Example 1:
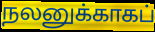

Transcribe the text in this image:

நலனுக்காகப்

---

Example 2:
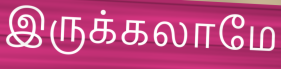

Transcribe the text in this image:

இருக்கலாமே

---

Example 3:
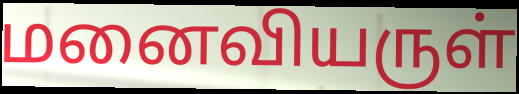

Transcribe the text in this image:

மனைவியருள்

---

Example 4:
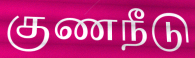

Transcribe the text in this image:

குணநீடு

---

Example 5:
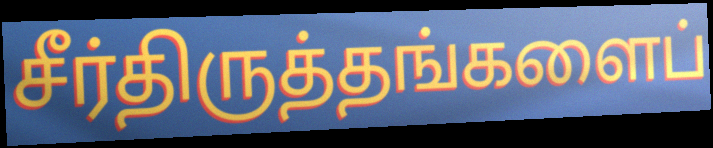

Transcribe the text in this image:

சீர்திருத்தங்களைப்